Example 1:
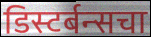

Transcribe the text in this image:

डिस्टर्बन्सचा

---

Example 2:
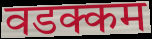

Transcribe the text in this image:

वडक्कम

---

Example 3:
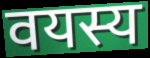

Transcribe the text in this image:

वयस्य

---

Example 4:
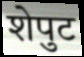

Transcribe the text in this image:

शेपुट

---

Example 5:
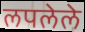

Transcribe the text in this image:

लपलेले